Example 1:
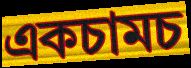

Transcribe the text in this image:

একচামচ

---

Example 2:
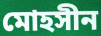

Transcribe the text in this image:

মোহসীন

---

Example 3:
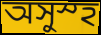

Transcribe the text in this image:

অসুস্হ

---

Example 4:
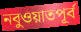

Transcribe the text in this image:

নবুওয়াতপূর্ব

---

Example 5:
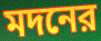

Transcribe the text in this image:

মদনের